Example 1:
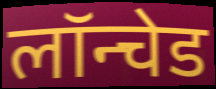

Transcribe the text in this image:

लॉन्चेड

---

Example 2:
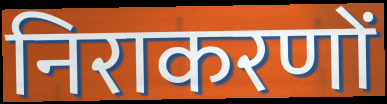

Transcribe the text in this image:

निराकरणों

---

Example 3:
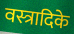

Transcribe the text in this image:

वस्त्रादिके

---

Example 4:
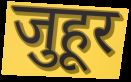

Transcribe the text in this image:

जुहूर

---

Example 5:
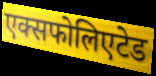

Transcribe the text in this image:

एक्सफोलिएटेड